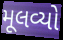
મૂલવ્યો